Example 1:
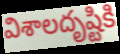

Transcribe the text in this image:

విశాలదృష్టికి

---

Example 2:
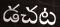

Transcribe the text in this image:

డచట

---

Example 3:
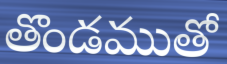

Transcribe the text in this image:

తొండముతో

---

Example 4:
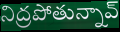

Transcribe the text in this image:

నిద్రపోతున్నావ్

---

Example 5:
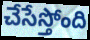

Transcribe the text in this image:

చేసేస్తోంది